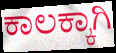
ಕಾಲಕ್ಕಾಗಿ